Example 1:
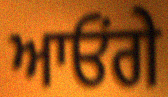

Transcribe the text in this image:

ਆਓਂਗੇ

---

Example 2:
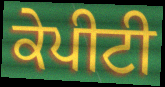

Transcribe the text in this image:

ਕੇਪੀਟੀ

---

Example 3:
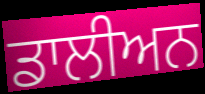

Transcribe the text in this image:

ਡਾਲੀਅਨ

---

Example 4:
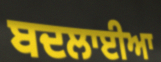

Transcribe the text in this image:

ਬਦਲਾਈਆ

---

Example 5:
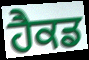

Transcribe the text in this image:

ਹੈਕਡ